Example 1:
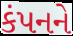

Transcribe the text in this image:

કંપનને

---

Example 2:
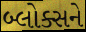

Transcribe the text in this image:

બ્લોક્સને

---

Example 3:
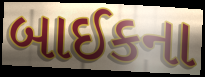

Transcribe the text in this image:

બાઈકના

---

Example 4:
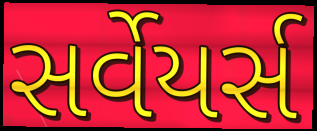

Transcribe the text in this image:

સર્વેયર્સ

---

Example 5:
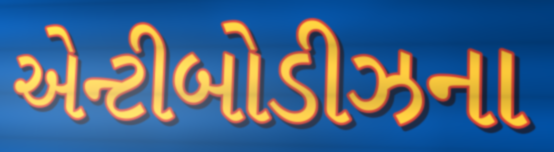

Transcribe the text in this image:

એન્ટીબોડીઝના